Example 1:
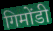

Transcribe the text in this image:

गिमोंडी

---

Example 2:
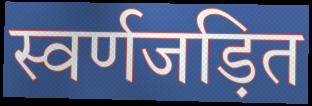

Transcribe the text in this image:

स्वर्णजड़ित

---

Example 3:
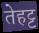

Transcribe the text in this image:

तेहट्ट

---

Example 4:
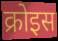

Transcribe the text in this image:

क्रोइस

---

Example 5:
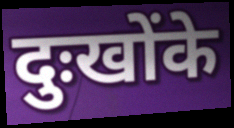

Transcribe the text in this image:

दुःखोंके